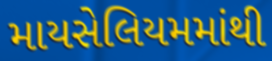
માયસેલિયમમાંથી